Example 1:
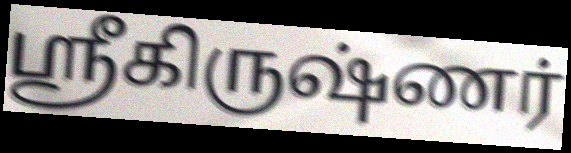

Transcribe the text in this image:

ஶ்ரீகிருஷ்ணர்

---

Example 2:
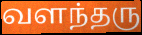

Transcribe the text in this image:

வளந்தரு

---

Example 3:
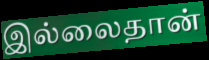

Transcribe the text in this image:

இல்லைதான்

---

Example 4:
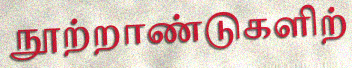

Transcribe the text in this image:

நூற்றாண்டுகளிற்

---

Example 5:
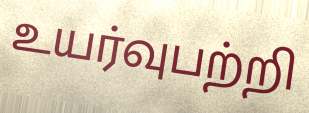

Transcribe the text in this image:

உயர்வுபற்றி